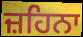
ਜ਼ਹਿਨਾ